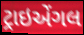
ટ્રાઇએંગલ